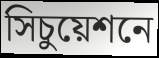
সিচুয়েশনে